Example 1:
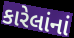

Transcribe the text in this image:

કારેલાંનાં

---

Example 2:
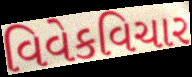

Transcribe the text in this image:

વિવેકવિચાર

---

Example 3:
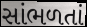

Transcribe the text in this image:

સાંભળતાં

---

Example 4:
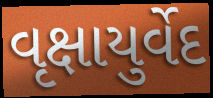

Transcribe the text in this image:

વૃક્ષાયુર્વેદ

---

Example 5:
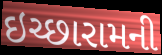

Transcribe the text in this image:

ઇચ્છારામની